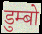
डुम्बो